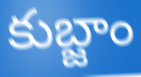
కుబ్జాం